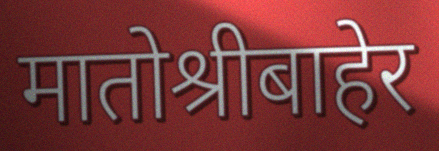
मातोश्रीबाहेर